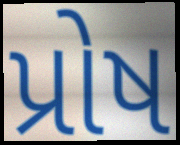
પ્રોષ